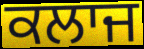
ਕਲਾਜ